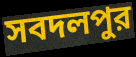
সবদলপুর